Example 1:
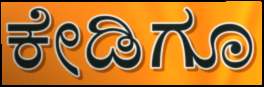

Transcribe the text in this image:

ಕೇಡಿಗೂ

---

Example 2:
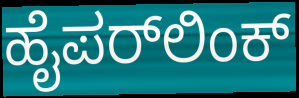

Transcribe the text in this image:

ಹೈಪರ್‌ಲಿಂಕ್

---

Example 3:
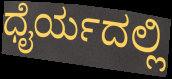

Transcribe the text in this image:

ಧೈರ್ಯದಲ್ಲಿ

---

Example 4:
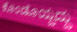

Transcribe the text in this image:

ಕೊಂಡೊಯ್ದದ್ದು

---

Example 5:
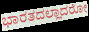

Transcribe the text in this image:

ಭಾರತದಲ್ಲಾದರೋ